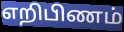
எறிபிணம்